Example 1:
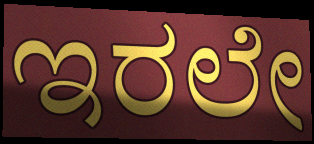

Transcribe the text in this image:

ಇರಲೇ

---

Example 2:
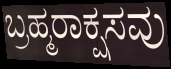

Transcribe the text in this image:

ಬ್ರಹ್ಮರಾಕ್ಷಸವು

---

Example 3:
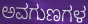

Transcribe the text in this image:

ಅವಗುಣಗಳ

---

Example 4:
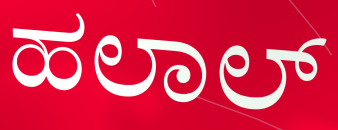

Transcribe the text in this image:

ಹಲಾಲ್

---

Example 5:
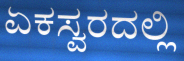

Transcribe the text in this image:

ಏಕಸ್ವರದಲ್ಲಿ